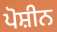
ਪੋਸ਼ੀਨ